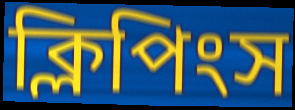
ক্লিপিংস